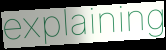
explaining